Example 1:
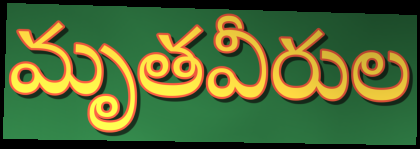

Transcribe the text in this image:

మృతవీరుల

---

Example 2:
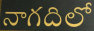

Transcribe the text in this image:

నాగదిలో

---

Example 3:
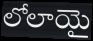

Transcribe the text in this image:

లోలాయై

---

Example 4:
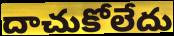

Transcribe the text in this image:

దాచుకోలేదు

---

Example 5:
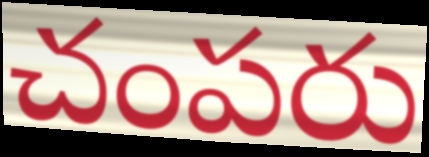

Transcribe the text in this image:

చంపరు